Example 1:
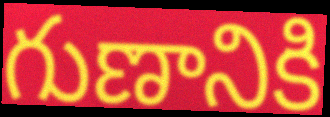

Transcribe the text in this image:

గుణానికి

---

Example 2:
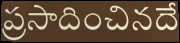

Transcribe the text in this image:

ప్రసాదించినదే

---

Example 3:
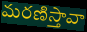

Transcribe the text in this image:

మరణిస్తావా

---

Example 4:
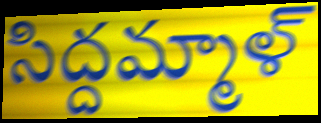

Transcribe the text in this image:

సిద్దమ్మాళ్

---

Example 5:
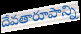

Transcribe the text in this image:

దేవతారూపాన్ని